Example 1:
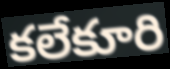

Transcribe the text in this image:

కలేకూరి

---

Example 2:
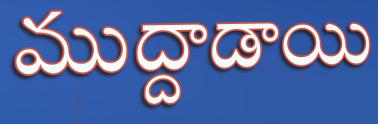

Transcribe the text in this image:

ముద్దాడాయి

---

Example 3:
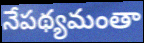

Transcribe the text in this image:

నేపథ్యమంతా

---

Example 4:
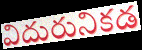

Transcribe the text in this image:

విదురునికడ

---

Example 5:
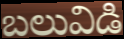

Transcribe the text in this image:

బలువిడి